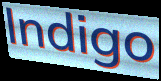
Indigo